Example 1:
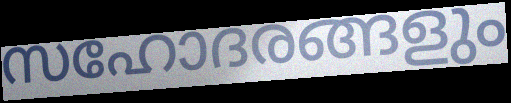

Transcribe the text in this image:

സഹോദരങ്ങളും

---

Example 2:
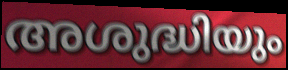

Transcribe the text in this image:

അശുദ്ധിയും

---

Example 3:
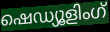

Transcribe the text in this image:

ഷെഡ്യൂളിംഗ്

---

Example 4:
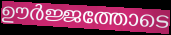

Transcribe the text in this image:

ഊർജ്ജത്തോടെ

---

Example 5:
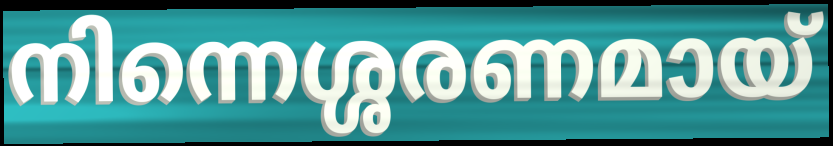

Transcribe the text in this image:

നിന്നെശ്ശരണമായ്